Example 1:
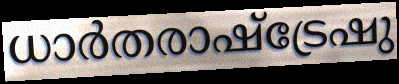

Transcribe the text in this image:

ധാർതരാഷ്ട്രേഷു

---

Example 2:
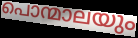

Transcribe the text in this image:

പൊന്മാലയും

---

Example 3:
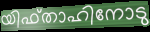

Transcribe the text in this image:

യിഫ്താഹിനോടു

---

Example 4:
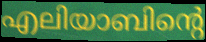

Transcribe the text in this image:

എലിയാബിന്റെ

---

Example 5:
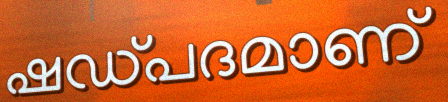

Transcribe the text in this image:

ഷഡ്പദമാണ്